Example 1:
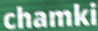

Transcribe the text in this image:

chamki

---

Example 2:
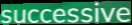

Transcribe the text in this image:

successive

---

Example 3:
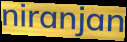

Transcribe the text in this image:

niranjan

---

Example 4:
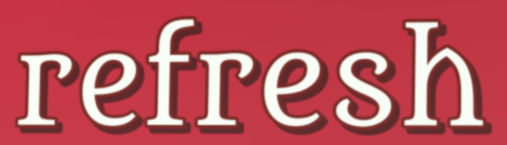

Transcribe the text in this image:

refresh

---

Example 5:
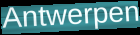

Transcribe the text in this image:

Antwerpen